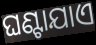
ଘଣ୍ଟାଯାଏ